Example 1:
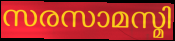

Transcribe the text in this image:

സരസാമസ്മി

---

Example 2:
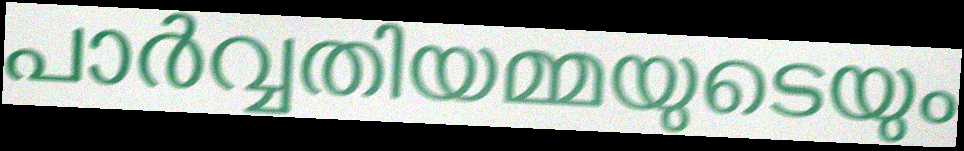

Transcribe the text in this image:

പാർവ്വതിയമ്മയുടെയും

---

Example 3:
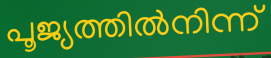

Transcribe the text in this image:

പൂജ്യത്തിൽനിന്ന്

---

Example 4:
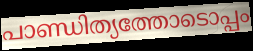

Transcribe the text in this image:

പാണ്ഡിത്യത്തോടൊപ്പം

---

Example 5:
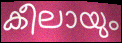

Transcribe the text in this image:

കീലായും